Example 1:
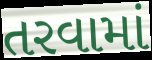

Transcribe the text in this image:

તરવામાં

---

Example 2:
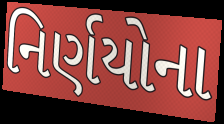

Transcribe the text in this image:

નિર્ણયોના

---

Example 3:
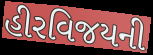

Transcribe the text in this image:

હીરવિજયની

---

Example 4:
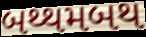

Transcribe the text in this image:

બથ્થમબથ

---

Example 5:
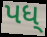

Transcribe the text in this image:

પધ્